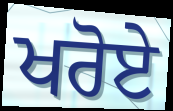
ਖਰੋਏ